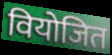
वियोजित